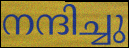
നന്ദിച്ചു